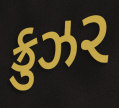
ક્રુઝર